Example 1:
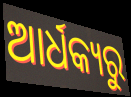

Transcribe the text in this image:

ଆର୍ଧକ୍ୟରୁ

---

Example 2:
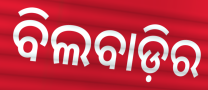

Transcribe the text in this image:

ବିଲବାଡ଼ିର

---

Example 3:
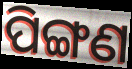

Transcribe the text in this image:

ପିଙ୍ଗଣ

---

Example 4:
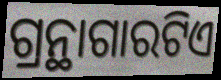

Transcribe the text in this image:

ଗ୍ରନ୍ଥାଗାରଟିଏ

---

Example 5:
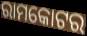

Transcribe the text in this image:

ରାମକୋଟର